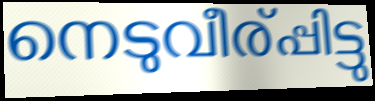
നെടുവീര്പ്പിട്ടു